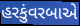
હરકુંવરબાએ